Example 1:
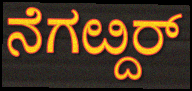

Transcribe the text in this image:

ನೆಗೞ್ದರ್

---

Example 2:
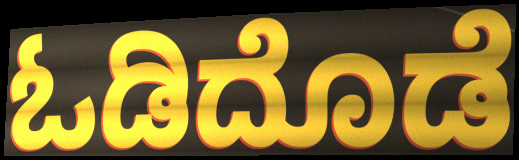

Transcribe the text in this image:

ಓಡಿದೊಡೆ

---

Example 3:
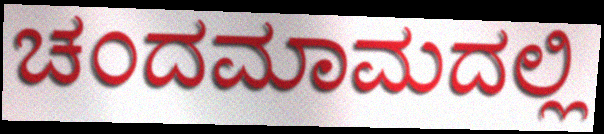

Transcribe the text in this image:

ಚಂದಮಾಮದಲ್ಲಿ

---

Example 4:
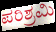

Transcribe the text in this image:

ಪರಿಶ್ರಮಿ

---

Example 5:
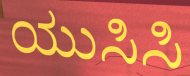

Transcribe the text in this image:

ಯುಸಿಸಿ